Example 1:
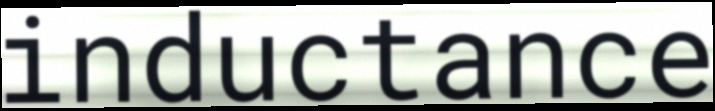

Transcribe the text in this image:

inductance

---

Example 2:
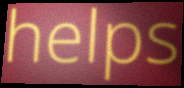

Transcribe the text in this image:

helps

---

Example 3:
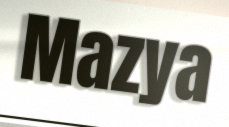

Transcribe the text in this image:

Mazya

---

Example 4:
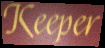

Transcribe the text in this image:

Keeper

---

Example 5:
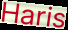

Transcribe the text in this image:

Haris